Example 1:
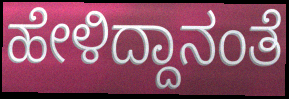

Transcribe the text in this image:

ಹೇಳಿದ್ದಾನಂತೆ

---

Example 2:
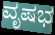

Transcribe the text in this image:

ವೃಷಭ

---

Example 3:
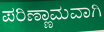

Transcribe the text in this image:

ಪರಿಣ್ಣಾಮವಾಗಿ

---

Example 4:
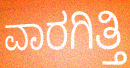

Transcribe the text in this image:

ವಾರಗಿತ್ತಿ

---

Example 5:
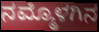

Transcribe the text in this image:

ನಮ್ಮೊಳಗಿನ